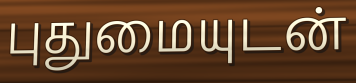
புதுமையுடன்